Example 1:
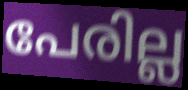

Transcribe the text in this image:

പേരില്ല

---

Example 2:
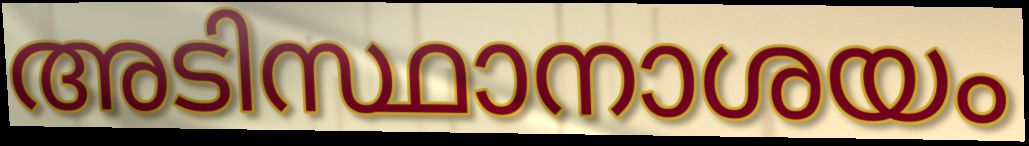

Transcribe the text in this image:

അടിസ്ഥാനാശയം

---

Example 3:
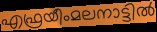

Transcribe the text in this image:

എഫ്രയീംമലനാട്ടിൽ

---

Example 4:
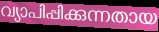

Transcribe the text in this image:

വ്യാപിപ്പിക്കുന്നതായ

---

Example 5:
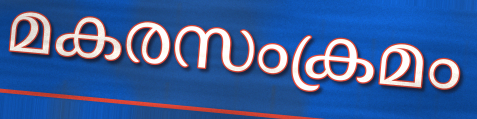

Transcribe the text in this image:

മകരസംക്രമം